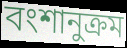
বংশানুক্রম